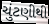
ચુંટણીથી